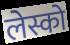
लेस्को